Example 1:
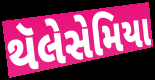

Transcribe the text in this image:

થૅલેસેમિયા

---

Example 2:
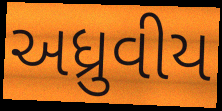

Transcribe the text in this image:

અધ્રુવીય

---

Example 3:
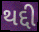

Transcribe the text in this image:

થદ્દી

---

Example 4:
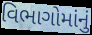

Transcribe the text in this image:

વિભાગોમાંનું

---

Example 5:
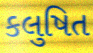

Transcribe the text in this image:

કલુષિત